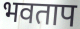
भवताप